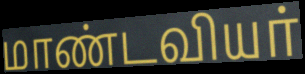
மாண்டவியர்